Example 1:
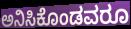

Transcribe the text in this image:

ಅನಿಸಿಕೊಂಡವರೂ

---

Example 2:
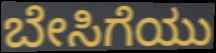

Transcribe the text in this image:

ಬೇಸಿಗೆಯು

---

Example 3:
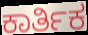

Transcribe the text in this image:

ಕಾರ್ತಿಕ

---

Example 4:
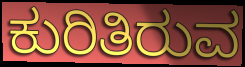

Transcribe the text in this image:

ಕುರಿತಿರುವ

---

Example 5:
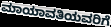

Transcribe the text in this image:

ಮಾಯಾವತಿಯವರಿಗೆ